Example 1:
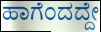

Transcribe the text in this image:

ಹಾಗೆಂದದ್ದೇ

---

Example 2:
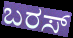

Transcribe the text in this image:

ಬರಸ್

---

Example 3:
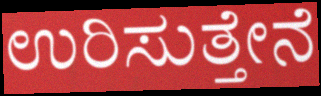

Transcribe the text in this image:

ಉರಿಸುತ್ತೇನೆ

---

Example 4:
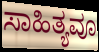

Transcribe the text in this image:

ಸಾಹಿತ್ಯವೂ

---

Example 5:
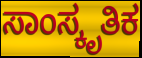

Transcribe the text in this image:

ಸಾಂಸ್ಕೃತಿಕ